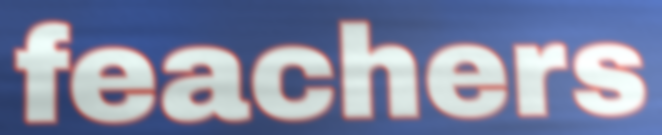
feachers